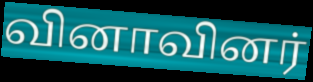
வினாவினர்